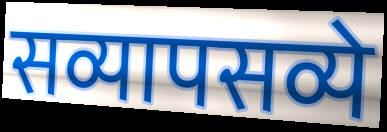
सव्यापसव्ये